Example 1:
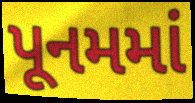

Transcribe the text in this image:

પૂનમમાં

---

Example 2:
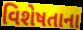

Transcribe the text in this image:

વિશેષતાના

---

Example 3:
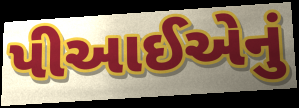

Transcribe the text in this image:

પીઆઈએનું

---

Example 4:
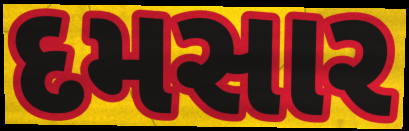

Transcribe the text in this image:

દમસાર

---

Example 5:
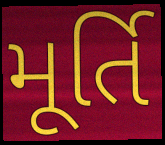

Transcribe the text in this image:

મૂર્તિ